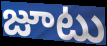
జూటు